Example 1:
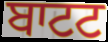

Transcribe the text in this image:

ਬਾਟਟ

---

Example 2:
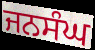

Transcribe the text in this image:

ਜਨਸੰਘ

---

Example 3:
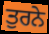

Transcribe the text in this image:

ਤੁਰਨੇ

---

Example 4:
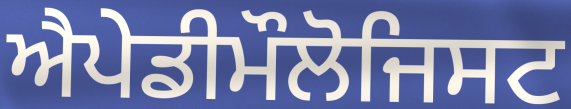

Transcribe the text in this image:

ਐਪੇਡੀਮੌਲੋਜਿਸਟ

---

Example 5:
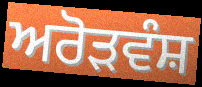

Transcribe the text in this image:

ਅਰੋੜਵੰਸ਼